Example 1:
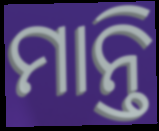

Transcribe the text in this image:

ମାନ୍ତି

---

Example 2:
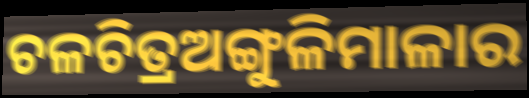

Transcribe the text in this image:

ଚଳଚିତ୍ରଅଙ୍ଗୁଳିମାଳାର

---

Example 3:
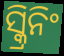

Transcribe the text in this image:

ସ୍କ୍ରିନିଂ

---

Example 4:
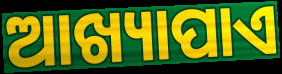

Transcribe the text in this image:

ଆଖ୍ୟାପାଏ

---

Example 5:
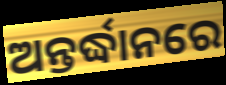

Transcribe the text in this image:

ଅନ୍ତର୍ଦ୍ଧାନରେ